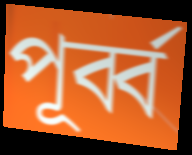
পূৰ্ব্ব